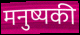
मनुष्यकी